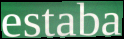
estaba